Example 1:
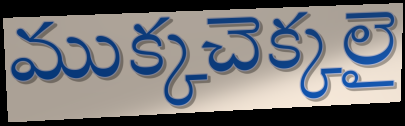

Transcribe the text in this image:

ముక్కచెక్కలై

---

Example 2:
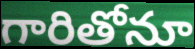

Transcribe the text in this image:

గారితోనూ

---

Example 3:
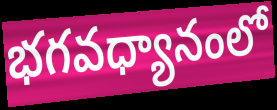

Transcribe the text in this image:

భగవధ్యానంలో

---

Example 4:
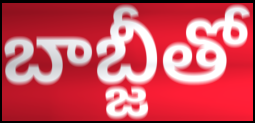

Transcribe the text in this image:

బాబ్జీతో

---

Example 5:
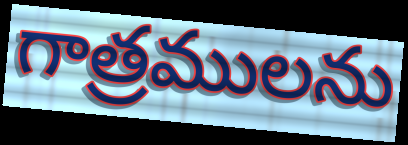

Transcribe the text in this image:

గాత్రములను